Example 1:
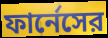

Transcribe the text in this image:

ফার্নেসের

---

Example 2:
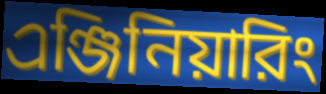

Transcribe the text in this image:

এঞ্জিনিয়ারিং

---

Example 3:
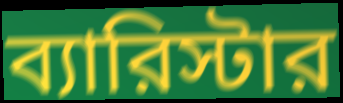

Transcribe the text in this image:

ব্যারিস্টার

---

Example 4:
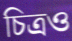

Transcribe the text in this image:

চিত্রও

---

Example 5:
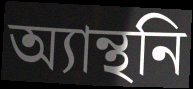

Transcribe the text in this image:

অ্যান্থনি